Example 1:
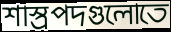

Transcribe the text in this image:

শাস্ত্রপদগুলোতে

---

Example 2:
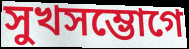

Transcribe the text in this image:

সুখসম্ভোগে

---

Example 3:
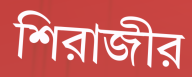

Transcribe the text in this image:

শিরাজীর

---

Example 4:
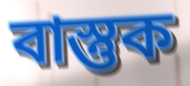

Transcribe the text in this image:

বাস্তুক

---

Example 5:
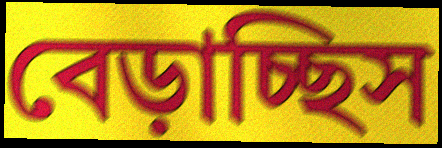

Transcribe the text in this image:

বেড়াচ্ছিস